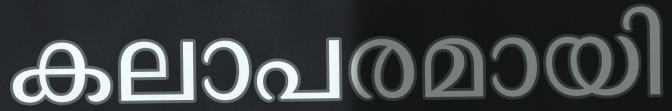
കലാപരമായി